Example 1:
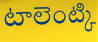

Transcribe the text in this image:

టాలెంట్కి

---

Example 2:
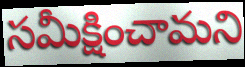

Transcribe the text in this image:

సమీక్షించామని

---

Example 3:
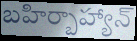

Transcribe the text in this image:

బహిర్బాహ్యాన్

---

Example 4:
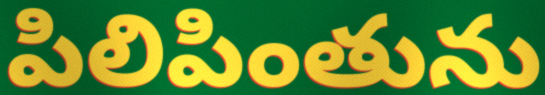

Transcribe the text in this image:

పిలిపింతును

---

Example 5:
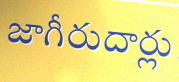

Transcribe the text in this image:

జాగీరుదార్లు